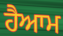
ਹੈਆਮ